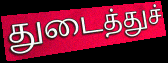
துடைத்துச்